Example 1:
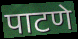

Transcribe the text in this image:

पाटणे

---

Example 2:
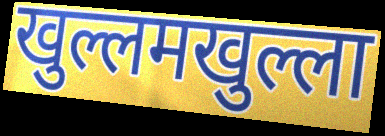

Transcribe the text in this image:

खुल्लमखुल्ला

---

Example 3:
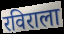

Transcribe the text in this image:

रविराला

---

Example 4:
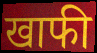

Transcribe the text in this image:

खाफी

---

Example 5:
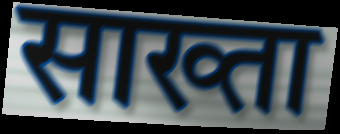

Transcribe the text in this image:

साख्ता